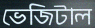
ভেজিটাল